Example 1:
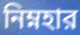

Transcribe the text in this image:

নিম্নহার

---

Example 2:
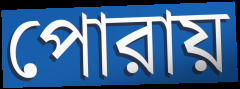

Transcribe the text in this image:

পোরায়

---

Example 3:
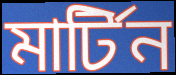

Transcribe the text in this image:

মার্টিন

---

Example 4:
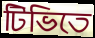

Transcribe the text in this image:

টিভিতে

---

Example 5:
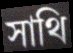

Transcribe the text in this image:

সাথি